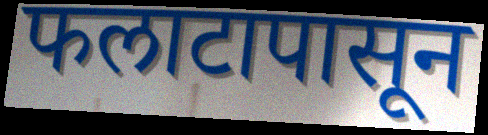
फलाटापासून